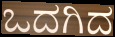
ಒದಗಿದ